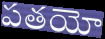
పతయో